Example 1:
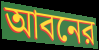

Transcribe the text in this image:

আবনের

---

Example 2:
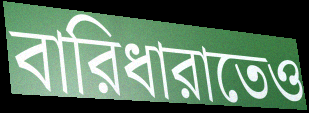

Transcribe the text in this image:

বারিধারাতেও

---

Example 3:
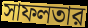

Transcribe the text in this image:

সাফলতার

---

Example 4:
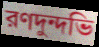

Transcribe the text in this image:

রণদুন্দভি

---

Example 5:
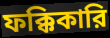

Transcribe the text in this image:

ফক্কিকারি